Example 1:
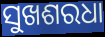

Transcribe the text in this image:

ସୁଖଶରଧା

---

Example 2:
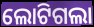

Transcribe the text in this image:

ଲୋଟିଗଲା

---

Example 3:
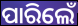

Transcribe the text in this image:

ପାରିଲେଁ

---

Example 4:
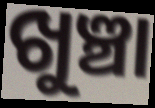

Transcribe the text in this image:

ଖୁଞ୍ଚା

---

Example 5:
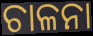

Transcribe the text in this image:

ଚାଳନା